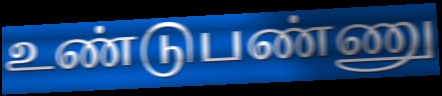
உண்டுபண்ணு